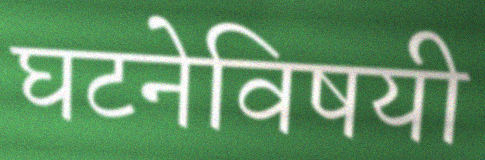
घटनेविषयी